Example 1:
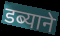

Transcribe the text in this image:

डब्याने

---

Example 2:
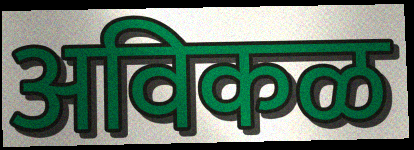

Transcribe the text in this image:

अविकळ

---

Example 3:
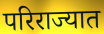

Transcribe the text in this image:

परिराज्यात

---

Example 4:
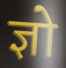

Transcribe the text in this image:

ज्ञो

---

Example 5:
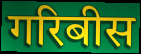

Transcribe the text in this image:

गरिबीस